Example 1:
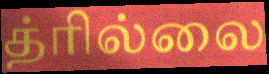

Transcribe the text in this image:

த்ரில்லை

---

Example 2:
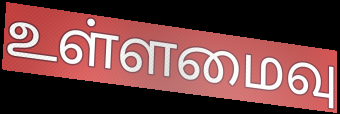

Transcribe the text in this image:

உள்ளமைவு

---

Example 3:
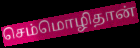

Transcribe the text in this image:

செம்மொழிதான்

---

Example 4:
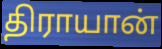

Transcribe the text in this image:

திராயான்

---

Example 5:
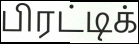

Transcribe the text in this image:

பிரட்டிக்